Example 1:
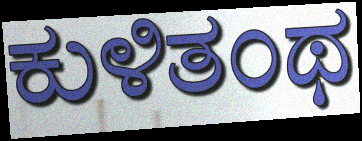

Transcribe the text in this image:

ಕುಳಿತಂಥ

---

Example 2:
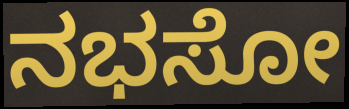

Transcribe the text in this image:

ನಭಸೋ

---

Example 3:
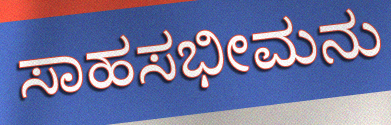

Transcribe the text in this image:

ಸಾಹಸಭೀಮನು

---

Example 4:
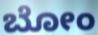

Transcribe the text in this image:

ಬೋಂ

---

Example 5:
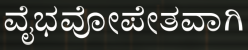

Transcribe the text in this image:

ವೈಭವೋಪೇತವಾಗಿ